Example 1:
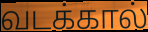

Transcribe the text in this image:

வடக்கால்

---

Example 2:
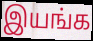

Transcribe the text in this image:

இயங்க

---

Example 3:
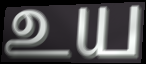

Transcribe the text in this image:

உய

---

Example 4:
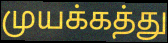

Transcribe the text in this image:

முயக்கத்து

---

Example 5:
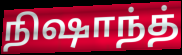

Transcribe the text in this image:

நிஷாந்த்